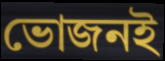
ভোজনই